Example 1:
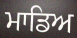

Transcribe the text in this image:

ਮਾਡਿਅ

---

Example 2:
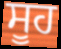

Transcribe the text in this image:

ਸੂਹ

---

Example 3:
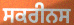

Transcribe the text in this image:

ਸਕਰੀਨਸ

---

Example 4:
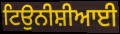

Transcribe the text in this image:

ਟਿਉਨੀਸ਼ੀਆਈ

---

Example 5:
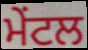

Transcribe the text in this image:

ਮੇਂਟਲ